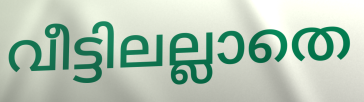
വീട്ടിലല്ലാതെ